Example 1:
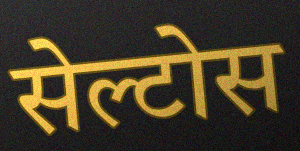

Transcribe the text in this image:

सेल्टोस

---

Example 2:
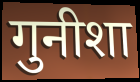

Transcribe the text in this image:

गुनीशा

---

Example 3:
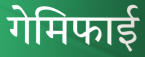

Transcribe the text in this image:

गेमिफाई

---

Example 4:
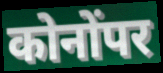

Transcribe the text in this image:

कोनोंपर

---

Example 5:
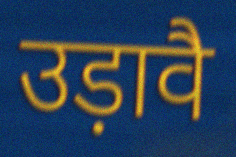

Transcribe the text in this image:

उड़ावै